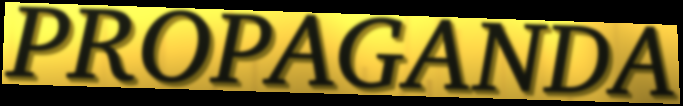
PROPAGANDA